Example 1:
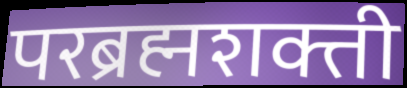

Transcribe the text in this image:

परब्रह्मशक्ती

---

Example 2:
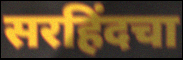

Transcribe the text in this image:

सरहिंदचा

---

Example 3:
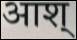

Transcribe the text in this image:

आश्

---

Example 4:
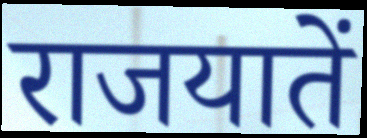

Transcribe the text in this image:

राजयातें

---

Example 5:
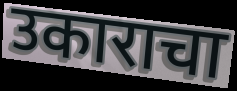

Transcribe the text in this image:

उकाराचा